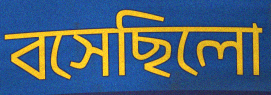
বসেছিলো